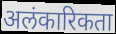
अलंकारिकता